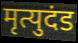
मृत्युदंड